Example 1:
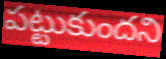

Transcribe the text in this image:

పట్టుకుందని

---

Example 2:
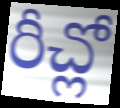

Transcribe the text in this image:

రీచ్లో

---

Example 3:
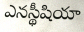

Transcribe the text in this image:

ఎనస్థీషియా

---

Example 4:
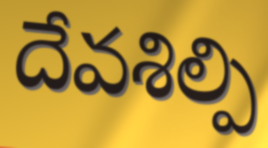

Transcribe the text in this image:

దేవశిల్పి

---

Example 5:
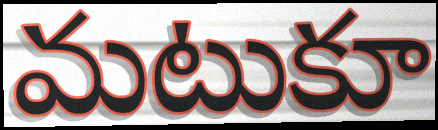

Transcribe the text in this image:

మటుకూ